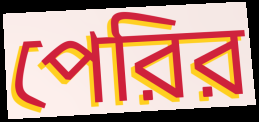
পেরির